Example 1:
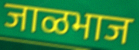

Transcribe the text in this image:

जाळभाज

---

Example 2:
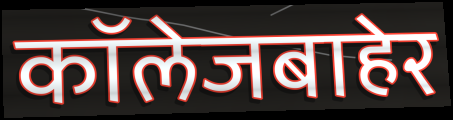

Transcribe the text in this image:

कॉलेजबाहेर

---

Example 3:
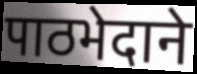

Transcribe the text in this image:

पाठभेदाने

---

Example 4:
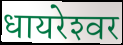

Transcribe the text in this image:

धायरेश्वर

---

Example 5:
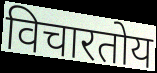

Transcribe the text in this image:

विचारतोय